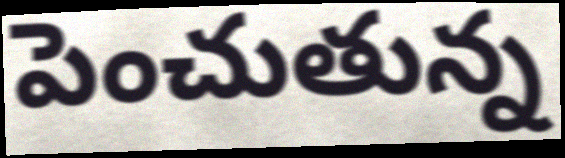
పెంచుతున్న